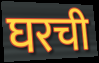
घरची